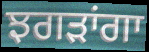
ਝਗੜਾਂਗਾ